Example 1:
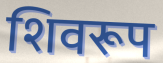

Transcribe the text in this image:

शिवरूप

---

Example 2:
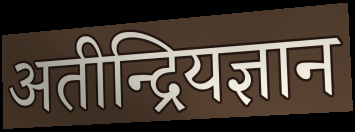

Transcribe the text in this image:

अतीन्द्रियज्ञान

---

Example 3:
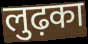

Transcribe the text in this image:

लुढ़का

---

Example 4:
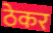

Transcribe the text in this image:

ठेकर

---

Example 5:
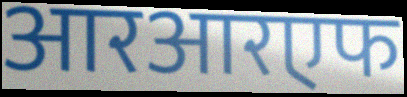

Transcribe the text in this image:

आरआरएफ